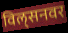
विल्सनवर